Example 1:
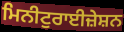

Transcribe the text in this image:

ਮਿਨੀਟੁਰਾਈਜ਼ੇਸ਼ਨ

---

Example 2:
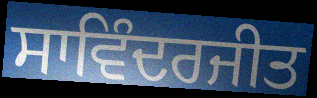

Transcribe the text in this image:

ਸਾਵਿੰਦਰਜੀਤ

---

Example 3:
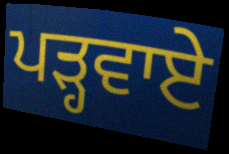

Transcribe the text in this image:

ਪੜ੍ਹਵਾਏ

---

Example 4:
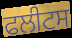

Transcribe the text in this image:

ਫਲੀਟਸ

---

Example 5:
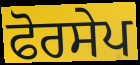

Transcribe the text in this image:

ਫੋਰਸੇਪ